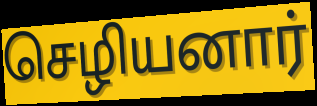
செழியனார்